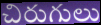
చిరుగులు